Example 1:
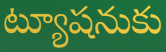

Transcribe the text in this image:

ట్యూషనుకు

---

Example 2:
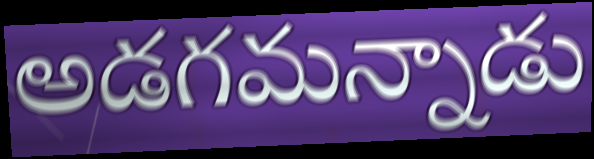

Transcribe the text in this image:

అడగమన్నాడు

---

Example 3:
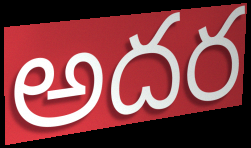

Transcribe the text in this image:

అదర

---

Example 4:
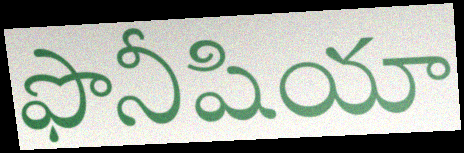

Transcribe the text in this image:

ఫొనీషియా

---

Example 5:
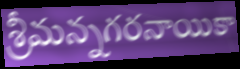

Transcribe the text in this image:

శ్రీమన్నగరనాయికా